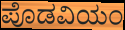
ಪೊಡವಿಯಂ